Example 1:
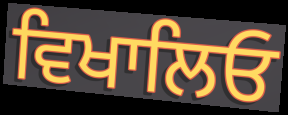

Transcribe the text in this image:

ਵਿਖਾਲਿਓ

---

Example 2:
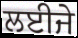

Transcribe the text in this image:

ਲਈਜੇ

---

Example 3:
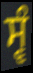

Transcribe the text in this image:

ਸ੍ਵੰ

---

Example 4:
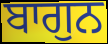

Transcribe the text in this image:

ਬਾਗੁਨ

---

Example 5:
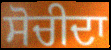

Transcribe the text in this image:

ਸੋਚੀਦਾ